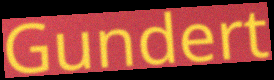
Gundert